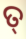
ତ୍